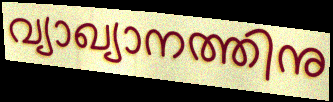
വ്യാഖ്യാനത്തിനു